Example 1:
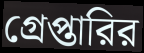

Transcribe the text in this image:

গ্রেপ্তারির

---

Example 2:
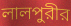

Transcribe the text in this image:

লালপুরীর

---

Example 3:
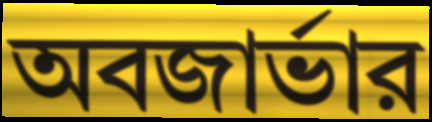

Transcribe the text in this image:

অবজার্ভার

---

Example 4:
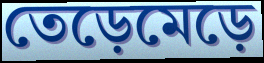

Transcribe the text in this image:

তেড়েমেড়ে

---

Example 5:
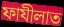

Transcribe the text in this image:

ফাযীলাত